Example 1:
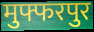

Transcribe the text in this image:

मुफ्फरपुर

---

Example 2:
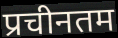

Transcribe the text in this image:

प्रचीनतम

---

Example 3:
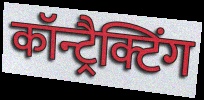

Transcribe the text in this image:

कॉन्ट्रैक्टिंग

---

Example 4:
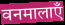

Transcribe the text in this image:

वनमालाएँ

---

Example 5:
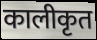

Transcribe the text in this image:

कालीकृत